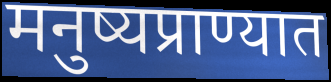
मनुष्यप्राण्यात